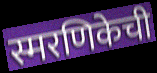
स्मरणिकेची